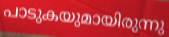
പാടുകയുമായിരുന്നു